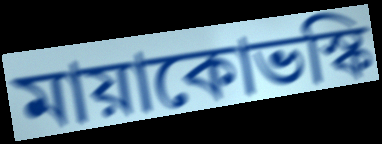
মায়াকোভস্কি